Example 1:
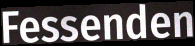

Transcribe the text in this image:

Fessenden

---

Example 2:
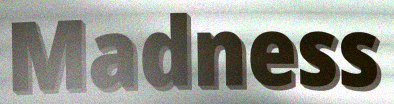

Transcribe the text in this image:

Madness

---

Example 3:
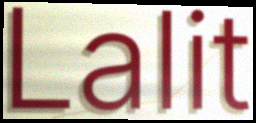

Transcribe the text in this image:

Lalit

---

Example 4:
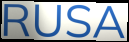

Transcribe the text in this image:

RUSA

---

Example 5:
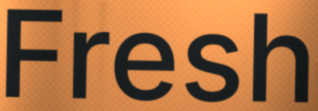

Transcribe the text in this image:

Fresh